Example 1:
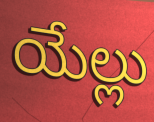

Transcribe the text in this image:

యేల్లు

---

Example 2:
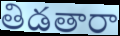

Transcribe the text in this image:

తిడతారా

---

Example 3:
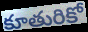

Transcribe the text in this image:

కూతురికో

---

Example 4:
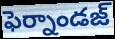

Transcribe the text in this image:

ఫెర్నాండజ్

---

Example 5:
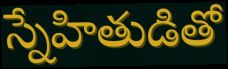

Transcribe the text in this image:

స్నేహితుడితో